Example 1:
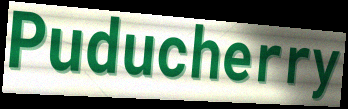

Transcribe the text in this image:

Puducherry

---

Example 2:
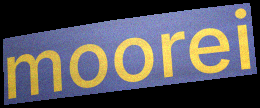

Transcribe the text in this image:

moorei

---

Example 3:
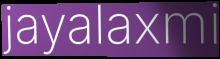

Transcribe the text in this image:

jayalaxmi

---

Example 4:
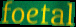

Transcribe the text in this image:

foetal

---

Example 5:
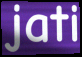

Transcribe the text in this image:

jati